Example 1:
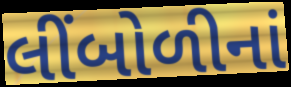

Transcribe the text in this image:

લીંબોળીનાં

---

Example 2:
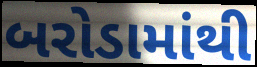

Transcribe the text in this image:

બરોડામાંથી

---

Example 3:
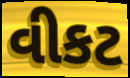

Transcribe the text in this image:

વીકટ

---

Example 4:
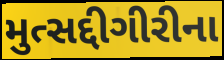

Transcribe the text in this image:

મુત્સદ્દીગીરીના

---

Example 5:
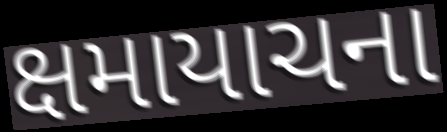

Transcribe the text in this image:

ક્ષમાયાચના